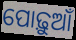
ପୋଢ଼ୁଆଁ